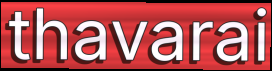
thavarai